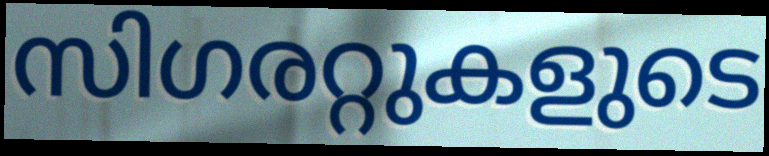
സിഗരറ്റുകളുടെ